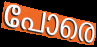
പോരെ